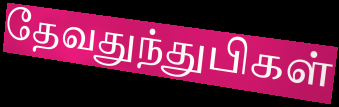
தேவதுந்துபிகள்